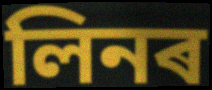
লিনৰ